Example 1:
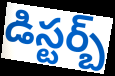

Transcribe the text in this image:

డిస్టర్బ్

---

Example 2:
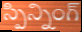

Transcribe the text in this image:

స్పిన్నింగ్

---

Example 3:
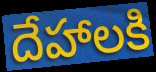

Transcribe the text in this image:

దేహాలకి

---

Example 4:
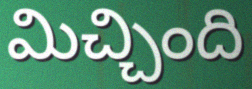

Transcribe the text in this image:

మిచ్చింది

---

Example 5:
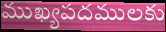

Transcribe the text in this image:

ముఖ్యపదములకు